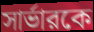
সার্ভারকে